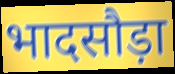
भादसौड़ा